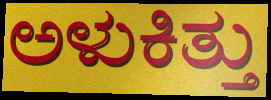
ಅಳುಕಿತ್ತು